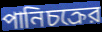
পানিচক্রের